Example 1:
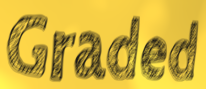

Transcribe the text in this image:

Graded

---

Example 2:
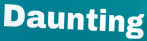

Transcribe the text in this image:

Daunting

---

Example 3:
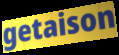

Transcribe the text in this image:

getaison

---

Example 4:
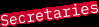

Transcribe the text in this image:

Secretaries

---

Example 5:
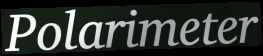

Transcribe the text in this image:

Polarimeter